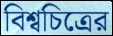
বিশ্বচিত্রের